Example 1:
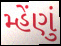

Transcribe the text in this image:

મ્હેંણું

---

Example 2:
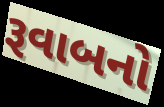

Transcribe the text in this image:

રૂવાબનો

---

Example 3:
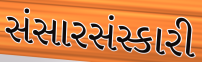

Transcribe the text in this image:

સંસારસંસ્કારી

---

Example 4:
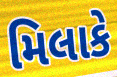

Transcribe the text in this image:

મિલાકે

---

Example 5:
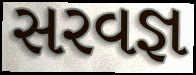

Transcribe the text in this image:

સરવજ્ઞ